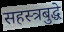
सहस्त्रबुद्धे